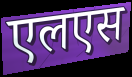
एलएस